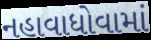
નહાવાધોવામાં